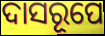
ଦାସରୂପେ